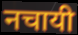
नचायी